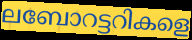
ലബോറട്ടറികളെ